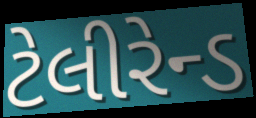
ટેલીરેન્ડ